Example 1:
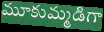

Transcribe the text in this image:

మూకుమ్మడిగా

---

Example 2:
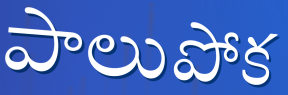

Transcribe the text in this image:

పాలుపోక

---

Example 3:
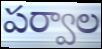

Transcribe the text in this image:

పర్వాల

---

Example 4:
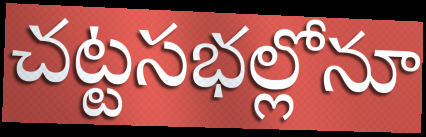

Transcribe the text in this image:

చట్టసభల్లోనూ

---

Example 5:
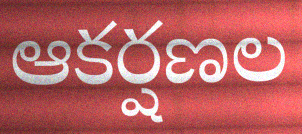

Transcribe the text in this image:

ఆకర్షణల